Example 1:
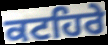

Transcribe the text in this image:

ਕਟਹਿਰੇ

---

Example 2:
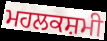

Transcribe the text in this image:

ਮਹਲਕਸ਼ਮੀ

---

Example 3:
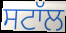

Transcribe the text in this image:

ਸਟਾੱਲ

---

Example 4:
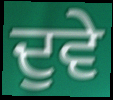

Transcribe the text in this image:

ਦੁਵੇ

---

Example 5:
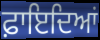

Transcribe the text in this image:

ਫ਼ਾਇਦਿਆਂ